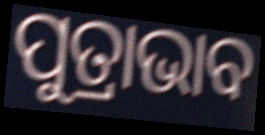
ପୁତ୍ରାଭାବ